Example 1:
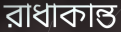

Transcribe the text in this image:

রাধাকান্ত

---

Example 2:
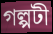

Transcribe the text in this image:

গল্পটী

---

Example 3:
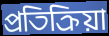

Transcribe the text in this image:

প্রতিক্রিয়া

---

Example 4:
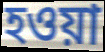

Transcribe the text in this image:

হওয়া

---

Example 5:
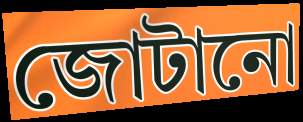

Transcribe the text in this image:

জোটানো